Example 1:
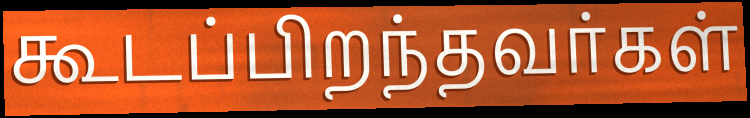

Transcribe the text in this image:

கூடப்பிறந்தவர்கள்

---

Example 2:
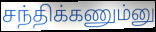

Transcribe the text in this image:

சந்திக்கணும்னு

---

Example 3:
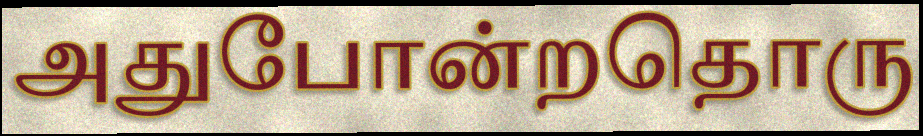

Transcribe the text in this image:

அதுபோன்றதொரு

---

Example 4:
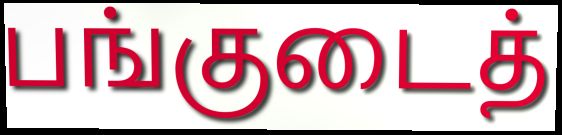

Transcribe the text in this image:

பங்குடைத்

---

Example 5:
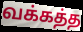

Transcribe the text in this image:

வக்கத்த